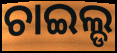
ଚାଇଲ୍ଡ